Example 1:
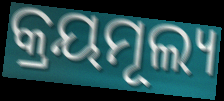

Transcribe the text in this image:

କ୍ରୟମୂଲ୍ୟ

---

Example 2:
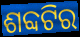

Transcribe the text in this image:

ଶବ୍ଦଟିର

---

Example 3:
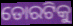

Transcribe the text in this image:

ଡୋରଟିକୁ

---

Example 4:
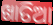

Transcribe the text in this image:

ଖାତିଆ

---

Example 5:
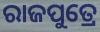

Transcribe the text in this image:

ରାଜପୁତ୍ରେ